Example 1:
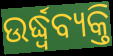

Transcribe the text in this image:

ଉର୍ଦ୍ଧ୍ୱବ୍ୟକ୍ତି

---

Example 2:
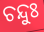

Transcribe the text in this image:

ଚନ୍ଦୁଃ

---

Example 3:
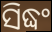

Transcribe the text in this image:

ସିଦ୍ଧଂ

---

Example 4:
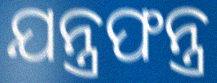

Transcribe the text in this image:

ଯନ୍ତ୍ରଫନ୍ତ୍ର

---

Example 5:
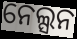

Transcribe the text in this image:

ନେଲ୍ସନ